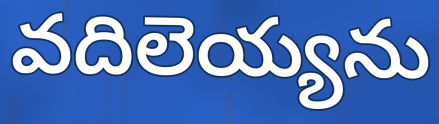
వదిలెయ్యను